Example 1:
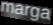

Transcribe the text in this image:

marga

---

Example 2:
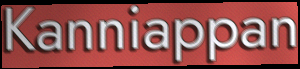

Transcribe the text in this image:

Kanniappan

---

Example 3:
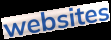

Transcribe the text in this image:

websites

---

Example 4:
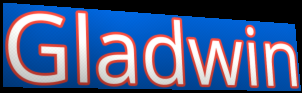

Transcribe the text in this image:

Gladwin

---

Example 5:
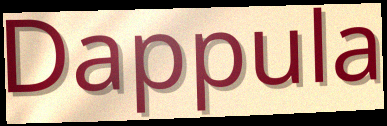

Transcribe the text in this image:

Dappula